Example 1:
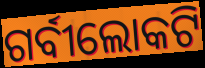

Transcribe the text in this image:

ଗର୍ବୀଲୋକଟି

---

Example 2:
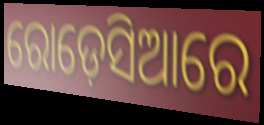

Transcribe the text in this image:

ରୋଡ଼େସିଆରେ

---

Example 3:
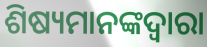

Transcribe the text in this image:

ଶିଷ୍ୟମାନଙ୍କଦ୍ୱାରା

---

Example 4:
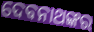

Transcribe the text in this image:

ଦେବନାଥଙ୍କର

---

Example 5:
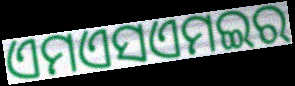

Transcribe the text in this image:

ଏମଏସଏମଇର